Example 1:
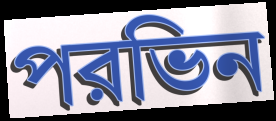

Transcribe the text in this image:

পরভিন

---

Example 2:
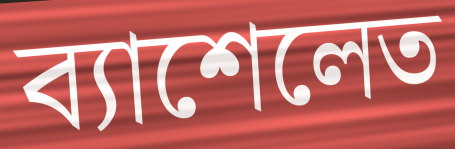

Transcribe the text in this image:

ব্যাশেলেত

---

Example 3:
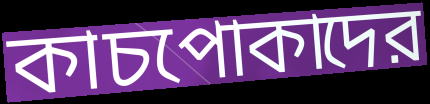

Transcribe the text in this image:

কাচপোকাদের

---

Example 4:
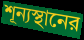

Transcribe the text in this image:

শূন্যস্থানের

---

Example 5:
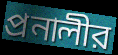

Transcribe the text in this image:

প্রনালীর